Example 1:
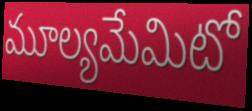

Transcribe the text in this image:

మూల్యమేమిటో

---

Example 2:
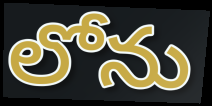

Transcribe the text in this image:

లోను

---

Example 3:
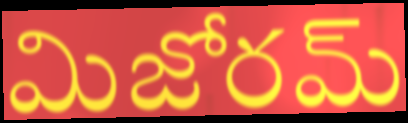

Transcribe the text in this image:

మిజోరమ్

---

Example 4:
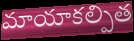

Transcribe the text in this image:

మాయాకల్పిత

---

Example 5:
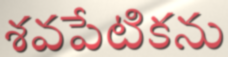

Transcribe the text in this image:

శవపేటికను